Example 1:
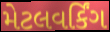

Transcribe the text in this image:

મેટલવર્કિંગ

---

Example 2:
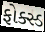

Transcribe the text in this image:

ફોક્સ્ડ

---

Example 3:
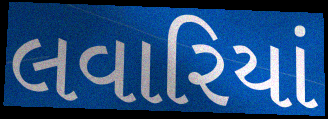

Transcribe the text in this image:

લવારિયાં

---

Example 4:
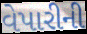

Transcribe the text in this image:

વેપારીની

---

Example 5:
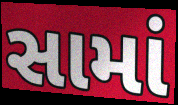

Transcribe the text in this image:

સામાં